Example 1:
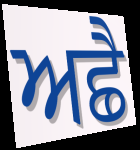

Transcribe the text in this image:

ਅਛੈ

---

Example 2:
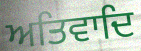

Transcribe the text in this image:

ਅਤਿਵਾਦਿ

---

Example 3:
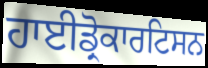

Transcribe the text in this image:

ਹਾਈਡ੍ਰੋਕਾਰਟਿਸਨ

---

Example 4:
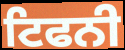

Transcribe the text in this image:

ਟਿਫਨੀ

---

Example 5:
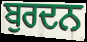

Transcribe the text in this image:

ਬੁਰਦਨ